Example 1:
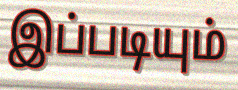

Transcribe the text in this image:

இப்படியும்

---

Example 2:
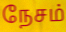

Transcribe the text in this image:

நேசம்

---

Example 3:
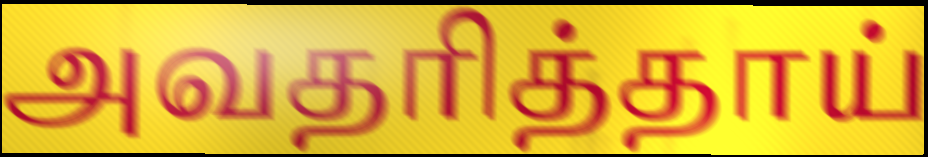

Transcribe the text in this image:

அவதரித்தாய்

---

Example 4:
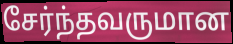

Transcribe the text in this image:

சேர்ந்தவருமான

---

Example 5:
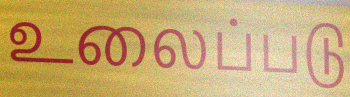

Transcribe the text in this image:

உலைப்படு